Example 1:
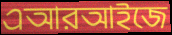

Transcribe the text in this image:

এআরআইজে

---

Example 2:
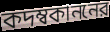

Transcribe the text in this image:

কদম্বকাননের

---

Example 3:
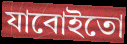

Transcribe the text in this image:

যাবোইতো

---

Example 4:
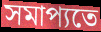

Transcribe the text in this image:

সমাপ্যতে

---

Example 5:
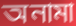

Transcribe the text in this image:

অনামা